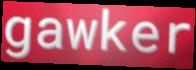
gawker